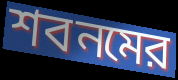
শবনমের